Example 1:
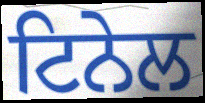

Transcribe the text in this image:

ਟਿਨੇਲ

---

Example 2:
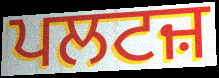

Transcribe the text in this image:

ਪਲਟਜ਼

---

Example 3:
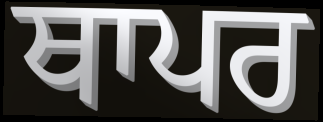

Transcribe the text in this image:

ਥਾਪਰ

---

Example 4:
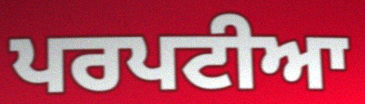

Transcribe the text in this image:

ਪਰਪਟੀਆ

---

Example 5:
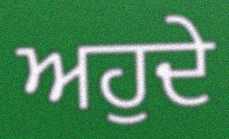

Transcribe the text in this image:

ਅਹੁਦੇ